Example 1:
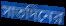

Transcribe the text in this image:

সাতদিনের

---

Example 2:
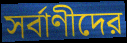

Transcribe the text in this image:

সর্বাণীদের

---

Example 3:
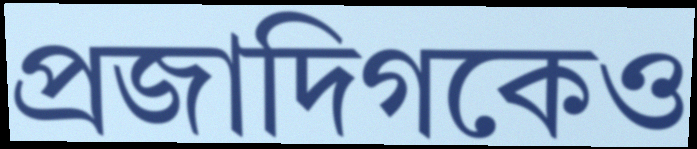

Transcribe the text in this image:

প্রজাদিগকেও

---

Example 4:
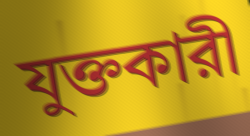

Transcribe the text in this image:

যুক্তকারী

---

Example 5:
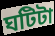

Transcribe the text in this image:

ঘটিটা